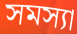
সমস্যা